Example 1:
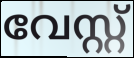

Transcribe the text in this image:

വേസ്റ്റ്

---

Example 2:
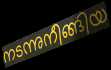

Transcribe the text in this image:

നടന്നുനീങ്ങിയ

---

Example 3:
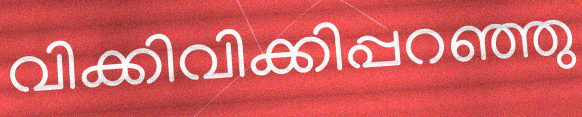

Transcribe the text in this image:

വിക്കിവിക്കിപ്പറഞ്ഞു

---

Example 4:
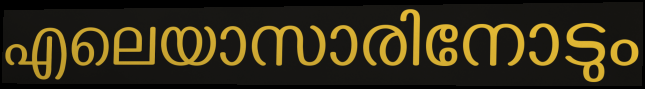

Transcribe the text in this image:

എലെയാസാരിനോടും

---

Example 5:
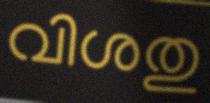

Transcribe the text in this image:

വിശതു